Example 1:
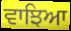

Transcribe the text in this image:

ਵਾਝਿਆ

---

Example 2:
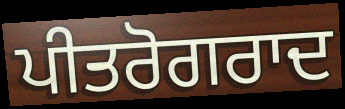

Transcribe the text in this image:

ਪੀਤਰੋਗਰਾਦ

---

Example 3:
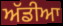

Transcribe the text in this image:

ਅੱਡੀਆ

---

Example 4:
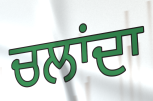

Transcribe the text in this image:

ਚਲਾਂਦਾ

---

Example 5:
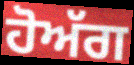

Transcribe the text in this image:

ਹੋਅੱਗ